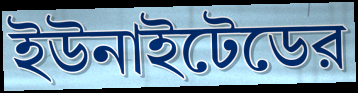
ইউনাইটেডের